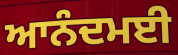
ਆਨੰਦਮਈ